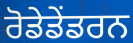
ਰੋਡੇਡੇਂਡਰਨ